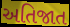
અતિજાત